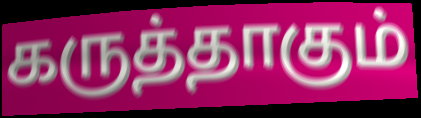
கருத்தாகும்